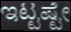
ಇಟ್ಟಷ್ಟೇ